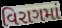
વિરાગમાં